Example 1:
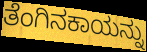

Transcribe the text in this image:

ತೆಂಗಿನಕಾಯನ್ನು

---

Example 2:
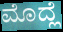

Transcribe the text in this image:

ಮೊದ್ಲೆ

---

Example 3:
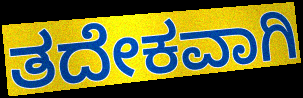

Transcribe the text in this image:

ತದೇಕವಾಗಿ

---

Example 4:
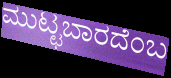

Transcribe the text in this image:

ಮುಟ್ಟಬಾರದೆಂಬ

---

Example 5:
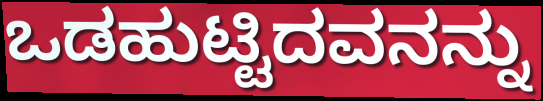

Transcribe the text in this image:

ಒಡಹುಟ್ಟಿದವನನ್ನು